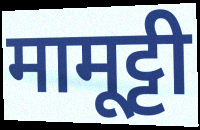
मामूट्टी